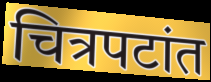
चित्रपटांत